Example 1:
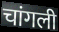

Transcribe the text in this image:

चांगली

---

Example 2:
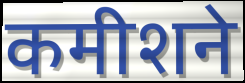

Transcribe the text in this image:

कमीशने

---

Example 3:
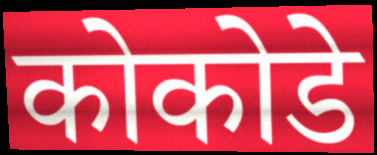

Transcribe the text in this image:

कोकोडे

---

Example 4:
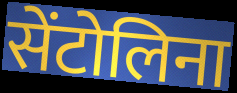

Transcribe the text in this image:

सेंटोलिना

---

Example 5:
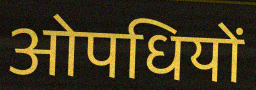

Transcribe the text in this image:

ओपधियों